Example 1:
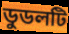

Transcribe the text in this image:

ডুডলটি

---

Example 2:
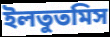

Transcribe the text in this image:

ইলতুতমিস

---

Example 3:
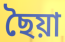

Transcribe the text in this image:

ছৈয়া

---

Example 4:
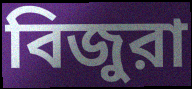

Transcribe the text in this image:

বিজুরা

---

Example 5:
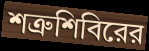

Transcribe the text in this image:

শত্রুশিবিরের